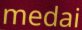
medai